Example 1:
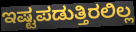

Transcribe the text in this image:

ಇಷ್ಟಪಡುತ್ತಿರಲಿಲ್ಲ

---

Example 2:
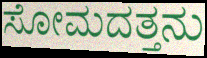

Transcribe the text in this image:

ಸೋಮದತ್ತನು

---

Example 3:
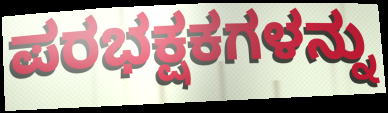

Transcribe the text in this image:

ಪರಭಕ್ಷಕಗಳನ್ನು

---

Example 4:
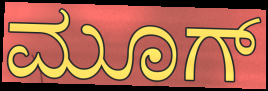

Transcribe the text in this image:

ಮೂಗ್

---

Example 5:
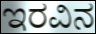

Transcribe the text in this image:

ಇರವಿನ